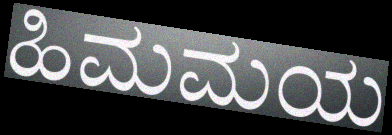
ಹಿಮಮಯ